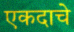
एकदाचे